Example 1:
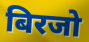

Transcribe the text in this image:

बिरजो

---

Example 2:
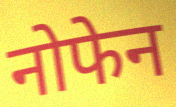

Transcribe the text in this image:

नोफेन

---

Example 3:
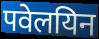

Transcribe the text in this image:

पवेलयिन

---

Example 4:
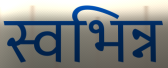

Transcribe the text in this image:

स्वभिन्न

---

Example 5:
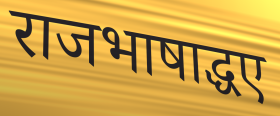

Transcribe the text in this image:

राजभाषाद्धए